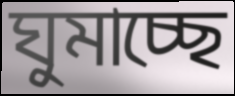
ঘুমাচ্ছে